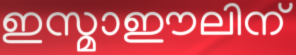
ഇസ്മാഈലിന്